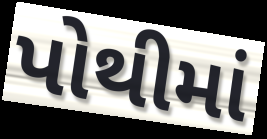
પોથીમાં